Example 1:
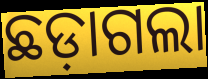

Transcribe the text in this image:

ଛଡ଼ାଗଲା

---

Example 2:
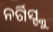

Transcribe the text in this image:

ନର୍ଗିସ୍ଙ୍କୁ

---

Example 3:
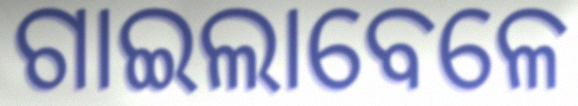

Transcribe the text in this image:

ଗାଇଲାବେଳେ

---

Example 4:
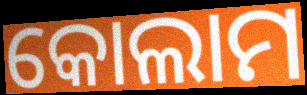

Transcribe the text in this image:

କୋଲାମ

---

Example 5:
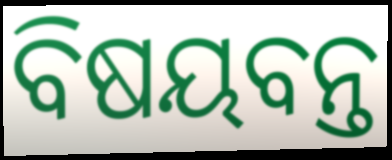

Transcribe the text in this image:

ବିଷୟବନ୍ତ